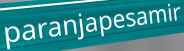
paranjapesamir